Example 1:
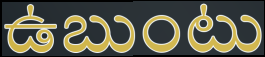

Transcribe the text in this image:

ఉబుంటు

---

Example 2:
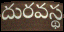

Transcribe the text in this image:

దురవస్థ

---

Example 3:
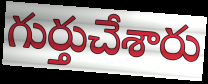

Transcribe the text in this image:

గుర్తుచేశారు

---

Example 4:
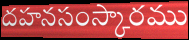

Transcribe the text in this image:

దహనసంస్కారము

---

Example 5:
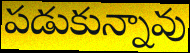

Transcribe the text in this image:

పడుకున్నావు